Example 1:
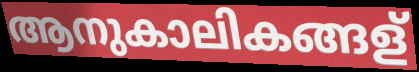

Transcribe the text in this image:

ആനുകാലികങ്ങള്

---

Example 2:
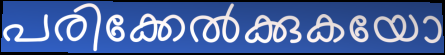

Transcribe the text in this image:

പരിക്കേൽക്കുകയോ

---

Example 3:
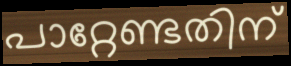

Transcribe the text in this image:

പാറ്റേണ്ടതിന്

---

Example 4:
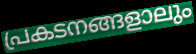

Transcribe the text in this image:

പ്രകടനങ്ങളാലും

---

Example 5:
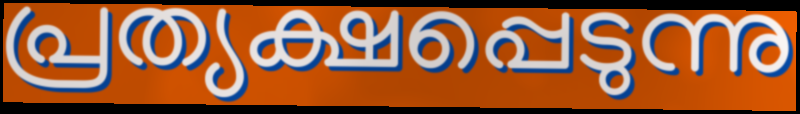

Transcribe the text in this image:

പ്രത്യക്ഷപ്പെടുന്നു